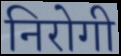
निरोगी